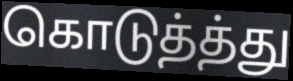
கொடுத்த்து